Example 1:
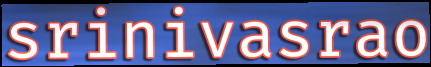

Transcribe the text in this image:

srinivasrao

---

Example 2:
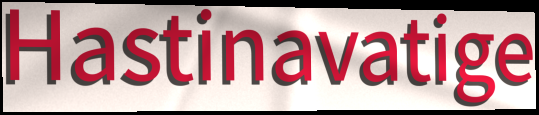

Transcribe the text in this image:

Hastinavatige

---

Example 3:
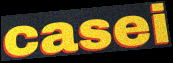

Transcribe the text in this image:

casei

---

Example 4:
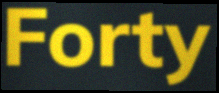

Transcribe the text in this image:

Forty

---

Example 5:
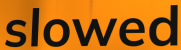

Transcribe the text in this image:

slowed